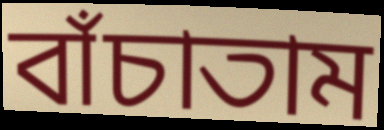
বাঁচাতাম